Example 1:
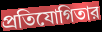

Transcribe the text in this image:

প্রতিযোগিতার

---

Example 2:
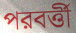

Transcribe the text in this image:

পরবর্ত্তী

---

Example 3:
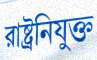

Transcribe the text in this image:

রাষ্ট্রনিযুক্ত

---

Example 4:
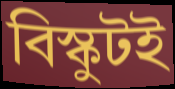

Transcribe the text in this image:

বিস্কুটই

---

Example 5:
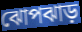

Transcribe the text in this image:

ঝোপঝাড়